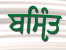
ਬਸੵਿੰਤ